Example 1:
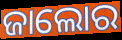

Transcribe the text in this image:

ଜାଲୋର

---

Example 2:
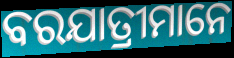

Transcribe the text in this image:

ବରଯାତ୍ରୀମାନେ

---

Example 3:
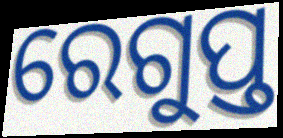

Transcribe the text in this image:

ରେଗୁପ୍ତ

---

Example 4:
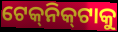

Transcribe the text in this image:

ଟେକ୍‌ନିକ୍‌ଟାକୁ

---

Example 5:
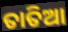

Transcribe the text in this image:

ତାତିଆ